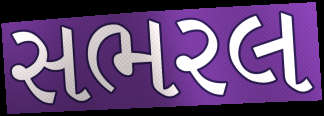
સભરલ